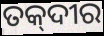
ତକ୍‌ଦୀର